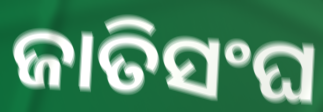
ଜାତିସଂଘ